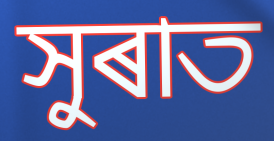
সুৰাত